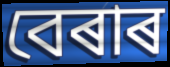
বেৰাৰ